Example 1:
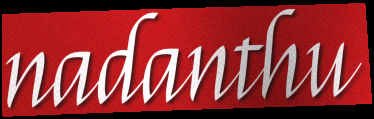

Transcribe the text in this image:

nadanthu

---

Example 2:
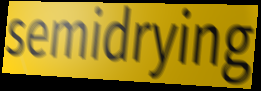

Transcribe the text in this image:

semidrying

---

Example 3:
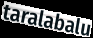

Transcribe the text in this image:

taralabalu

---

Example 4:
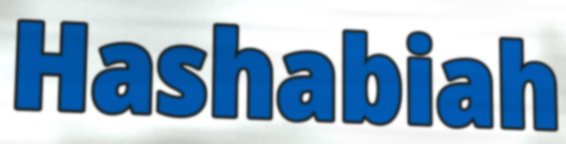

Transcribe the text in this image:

Hashabiah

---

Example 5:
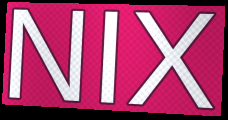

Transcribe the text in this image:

NIX